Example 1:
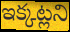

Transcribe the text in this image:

ఇక్కట్లని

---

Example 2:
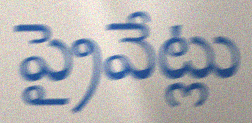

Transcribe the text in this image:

ప్రైవేట్లు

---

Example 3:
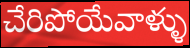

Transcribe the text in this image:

చేరిపోయేవాళ్ళు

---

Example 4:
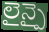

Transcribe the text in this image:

లైన్పై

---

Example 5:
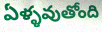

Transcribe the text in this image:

ఏళ్ళవుతోంది